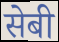
सेबी